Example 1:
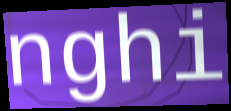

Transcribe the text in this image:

nghi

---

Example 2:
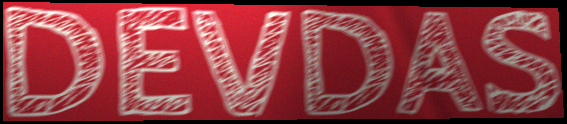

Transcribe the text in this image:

DEVDAS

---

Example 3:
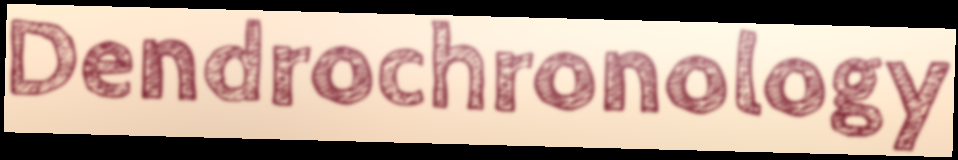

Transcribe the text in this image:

Dendrochronology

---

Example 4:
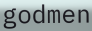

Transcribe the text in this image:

godmen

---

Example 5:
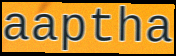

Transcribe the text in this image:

aaptha